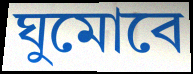
ঘুমোবে